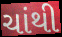
ચાંથી